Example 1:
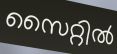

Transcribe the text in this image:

സൈറ്റിൽ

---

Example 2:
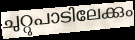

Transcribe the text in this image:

ചുറ്റുപാടിലേക്കും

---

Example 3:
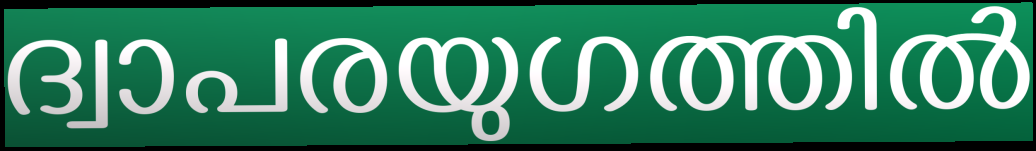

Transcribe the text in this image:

ദ്വാപരയുഗത്തിൽ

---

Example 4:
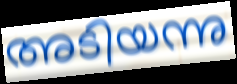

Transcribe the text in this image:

അടിയന്നു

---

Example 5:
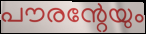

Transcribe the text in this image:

പൗരന്റേയും